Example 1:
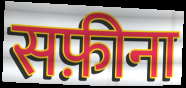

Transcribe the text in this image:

सफ़ीना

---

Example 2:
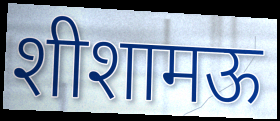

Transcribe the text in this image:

शीशामऊ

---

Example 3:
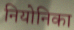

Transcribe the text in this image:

नियोनिका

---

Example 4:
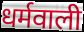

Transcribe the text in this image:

धर्मवाली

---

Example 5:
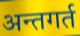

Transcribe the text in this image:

अन्तगर्त